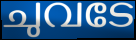
ചുവടേ